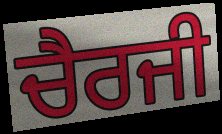
ਚੈਰਜੀ